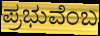
ಪ್ರಭುವೆಂಬ